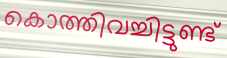
കൊത്തിവച്ചിട്ടുണ്ട്